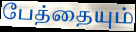
பேத்தையும்